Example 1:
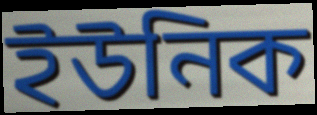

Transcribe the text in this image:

ইউনিক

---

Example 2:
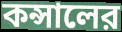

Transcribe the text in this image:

কন্সালের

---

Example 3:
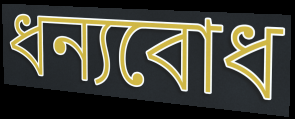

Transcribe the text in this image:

ধন্যবোধ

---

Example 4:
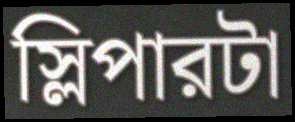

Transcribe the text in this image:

স্লিপারটা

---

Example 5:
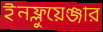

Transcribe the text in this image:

ইনফ্লুয়েঞ্জার